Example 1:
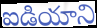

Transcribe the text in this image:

ఐడియాని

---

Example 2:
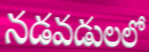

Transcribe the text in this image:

నడవడులలో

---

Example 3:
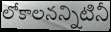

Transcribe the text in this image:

లోకాలనన్నిటినీ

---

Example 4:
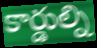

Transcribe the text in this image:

కార్డుల్ని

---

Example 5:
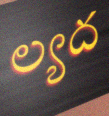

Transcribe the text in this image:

ల్యద